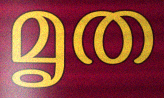
മൃത